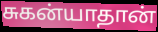
சுகன்யாதான்